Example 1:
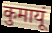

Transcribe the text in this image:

कुमायूं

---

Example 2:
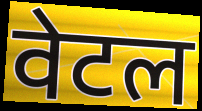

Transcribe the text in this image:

वेटल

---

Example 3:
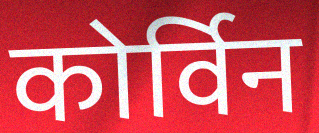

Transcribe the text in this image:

कोर्विन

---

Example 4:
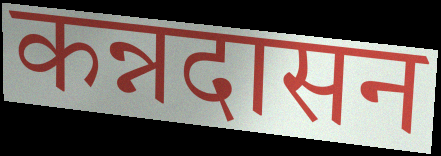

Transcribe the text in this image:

कन्नदासन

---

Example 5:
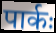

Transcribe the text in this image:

पार्कः